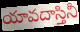
యావదాస్తినీ